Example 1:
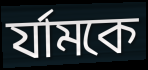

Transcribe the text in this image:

র্যামকে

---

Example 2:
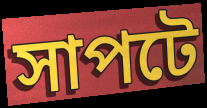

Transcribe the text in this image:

সাপটে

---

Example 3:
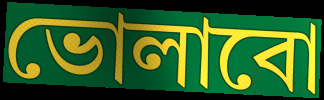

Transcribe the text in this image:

ভোলাবো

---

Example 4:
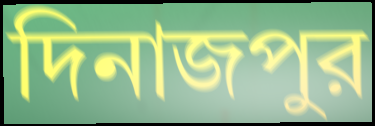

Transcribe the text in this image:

দিনাজপুর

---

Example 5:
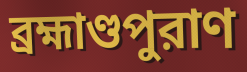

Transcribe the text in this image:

ব্রহ্মাণ্ডপুরাণ